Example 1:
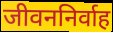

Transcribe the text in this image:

जीवननिर्वाह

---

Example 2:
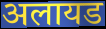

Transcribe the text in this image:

अलायड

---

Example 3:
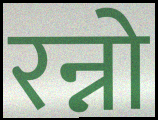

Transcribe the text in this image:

रन्नो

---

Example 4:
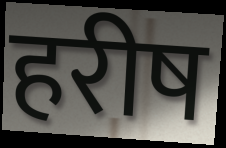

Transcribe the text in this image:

हरीष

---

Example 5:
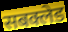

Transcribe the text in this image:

सबक्लेड